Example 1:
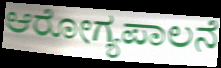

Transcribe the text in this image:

ಆರೋಗ್ಯಪಾಲನೆ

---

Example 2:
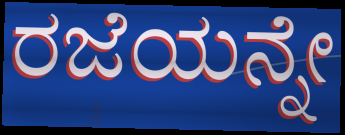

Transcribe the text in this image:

ರಜೆಯನ್ನೇ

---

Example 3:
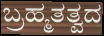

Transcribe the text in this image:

ಬ್ರಹ್ಮತತ್ವದ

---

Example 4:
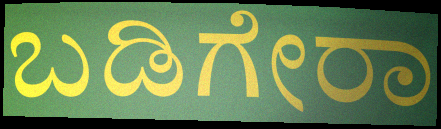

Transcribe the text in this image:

ಬಡಿಗೇರಾ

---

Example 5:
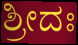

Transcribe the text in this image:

ಶ್ರೀದಃ